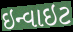
ઇન્વાઇટ